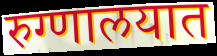
रुग्णालयात